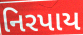
નિરપાય